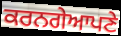
ਕਰਨਗੇਆਪਣੇ